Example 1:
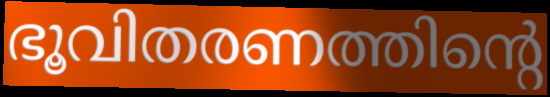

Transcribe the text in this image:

ഭൂവിതരണത്തിന്റെ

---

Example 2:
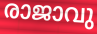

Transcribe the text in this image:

രാജാവു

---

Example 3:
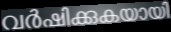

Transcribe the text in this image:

വർഷിക്കുകയായി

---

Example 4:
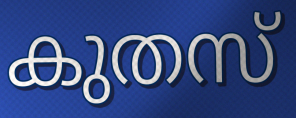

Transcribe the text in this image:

കുതസ്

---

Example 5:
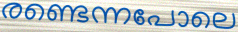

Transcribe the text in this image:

രണ്ടെന്നപോലെ